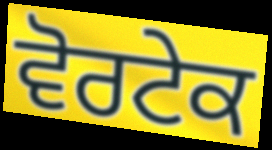
ਵੋਰਟੇਕ